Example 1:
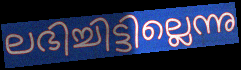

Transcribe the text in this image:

ലഭിച്ചിട്ടില്ലെന്നു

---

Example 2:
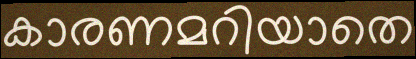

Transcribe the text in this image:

കാരണമറിയാതെ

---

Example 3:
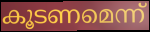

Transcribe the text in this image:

കൂടണമെന്ന്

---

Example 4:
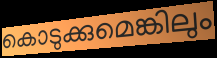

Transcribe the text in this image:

കൊടുക്കുമെങ്കിലും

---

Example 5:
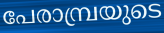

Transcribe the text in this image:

പേരാമ്പ്രയുടെ